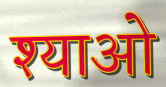
श्याओ